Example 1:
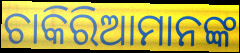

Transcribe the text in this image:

ଚାକିରିଆମାନଙ୍କ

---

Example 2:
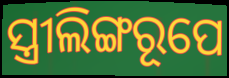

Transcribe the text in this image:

ସ୍ତ୍ରୀଲିଙ୍ଗରୂପେ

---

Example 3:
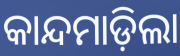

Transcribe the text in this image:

କାନ୍ଦମାଡ଼ିଲା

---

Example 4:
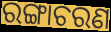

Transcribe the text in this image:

ରଙ୍ଗାଚରଣ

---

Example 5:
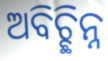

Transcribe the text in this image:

ଅବିଚ୍ଛିନ୍ନ